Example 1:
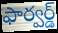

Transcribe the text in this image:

ఫార్వర్డ్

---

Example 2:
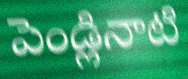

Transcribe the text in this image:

పెండ్లినాటి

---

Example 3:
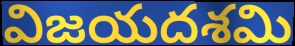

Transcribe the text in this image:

విజయదశమి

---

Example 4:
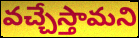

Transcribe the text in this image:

వచ్చేస్తామని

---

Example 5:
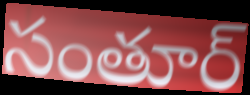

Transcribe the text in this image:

సంతూర్